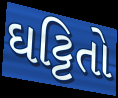
ઘટ્ટિતો